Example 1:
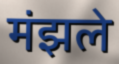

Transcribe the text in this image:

मंझले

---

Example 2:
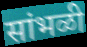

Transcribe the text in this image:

सांभळी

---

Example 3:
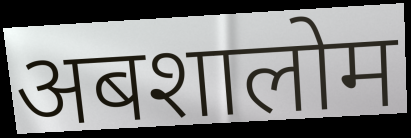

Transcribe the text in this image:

अबशालोम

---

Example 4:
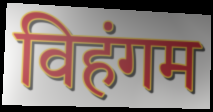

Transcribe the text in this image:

विहंगम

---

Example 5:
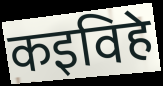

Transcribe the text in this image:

कइविहे